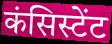
कंसिस्टेंट